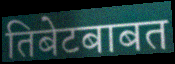
तिबेटबाबत